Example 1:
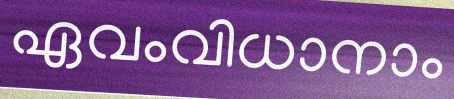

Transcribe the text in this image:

ഏവംവിധാനാം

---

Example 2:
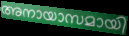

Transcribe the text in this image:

അനായാസമായി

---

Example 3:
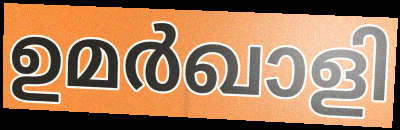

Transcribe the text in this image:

ഉമർഖാളി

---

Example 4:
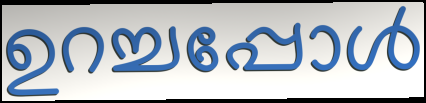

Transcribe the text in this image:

ഉറച്ചപ്പോൾ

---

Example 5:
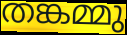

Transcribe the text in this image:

തങ്കമ്മു